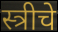
स्त्रीचे